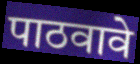
पाठवावे